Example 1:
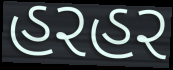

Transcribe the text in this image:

હરહર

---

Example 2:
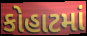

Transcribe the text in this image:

કોહાટમાં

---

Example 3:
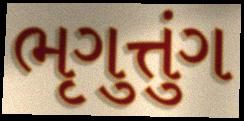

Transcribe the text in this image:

ભૃગુત્તુંગ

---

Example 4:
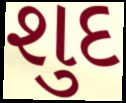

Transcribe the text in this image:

શુદ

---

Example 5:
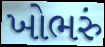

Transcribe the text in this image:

ખોભરું